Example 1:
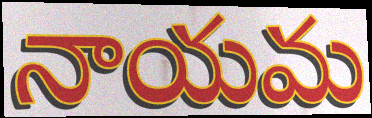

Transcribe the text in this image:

నాయమ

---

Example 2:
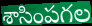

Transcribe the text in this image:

శాసింపగల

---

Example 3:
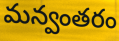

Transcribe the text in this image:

మన్వంతరం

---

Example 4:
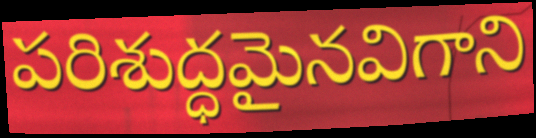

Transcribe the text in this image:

పరిశుద్ధమైనవిగాని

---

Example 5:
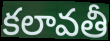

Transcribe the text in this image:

కలావతీ